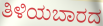
ತಿಳಿಯಬಾರದ